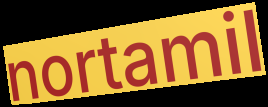
nortamil